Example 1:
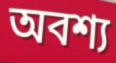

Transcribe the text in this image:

অবশ্য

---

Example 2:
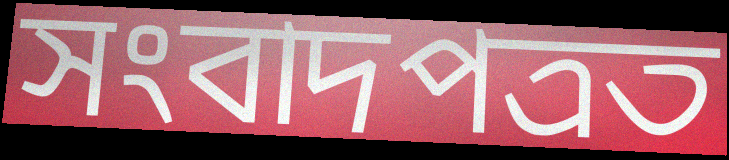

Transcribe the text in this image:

সংবাদপত্ৰত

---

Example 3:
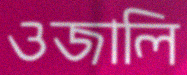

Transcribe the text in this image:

ওজালি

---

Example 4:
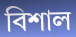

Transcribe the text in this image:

বিশাল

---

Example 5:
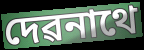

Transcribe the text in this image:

দেৱনাথে